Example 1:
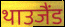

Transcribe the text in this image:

थाउजैंड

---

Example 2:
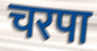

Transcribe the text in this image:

चरपा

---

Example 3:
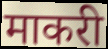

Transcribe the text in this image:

माकरी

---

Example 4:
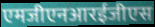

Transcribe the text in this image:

एमजीएनआरईजीएस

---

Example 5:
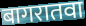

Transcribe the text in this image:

बागरातवा